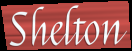
Shelton